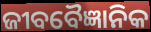
ଜୀବବୈଜ୍ଞାନିକ